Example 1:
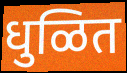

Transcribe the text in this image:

धुळित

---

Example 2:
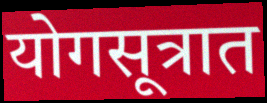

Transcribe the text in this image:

योगसूत्रात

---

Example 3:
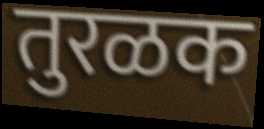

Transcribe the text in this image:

तुरळक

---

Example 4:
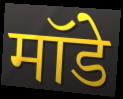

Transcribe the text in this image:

मॉडे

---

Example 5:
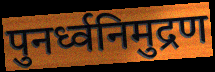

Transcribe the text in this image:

पुनर्ध्वनिमुद्रण